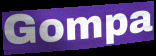
Gompa